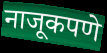
नाजूकपणे